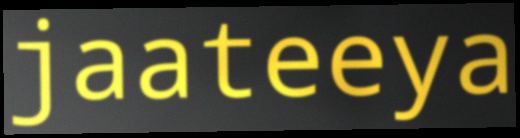
jaateeya